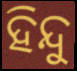
ହିନ୍ଦୁ